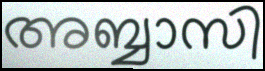
അബ്ബാസി